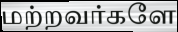
மற்றவர்களே